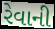
રેવાની